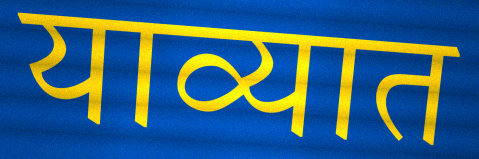
याव्यात